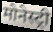
मोनेस्‍ट्री